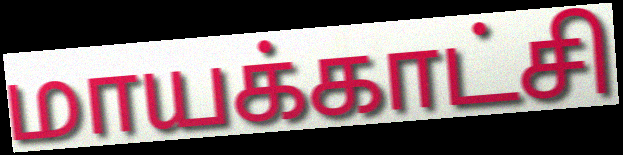
மாயக்காட்சி